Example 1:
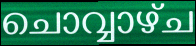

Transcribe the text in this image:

ചൊവ്വാഴ്‌ച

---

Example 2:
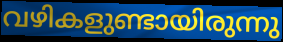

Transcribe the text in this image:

വഴികളുണ്ടായിരുന്നു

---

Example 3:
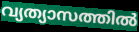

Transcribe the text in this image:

വ്യത്യാസത്തിൽ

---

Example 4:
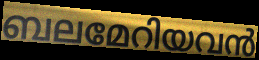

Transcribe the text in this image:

ബലമേറിയവൻ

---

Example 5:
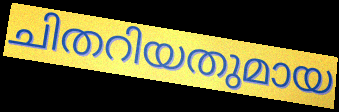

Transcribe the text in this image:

ചിതറിയതുമായ